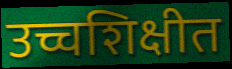
उच्चशिक्षीत